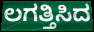
ಲಗತ್ತಿಸಿದ